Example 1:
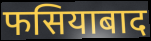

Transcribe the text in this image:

फसियाबाद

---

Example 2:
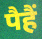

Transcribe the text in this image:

पैहैं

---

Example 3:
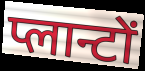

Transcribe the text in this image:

प्लान्टों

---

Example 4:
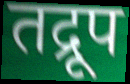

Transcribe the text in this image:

तद्रूप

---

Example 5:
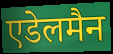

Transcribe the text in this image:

एडेलमैन